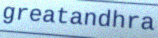
greatandhra